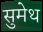
सुमेथ